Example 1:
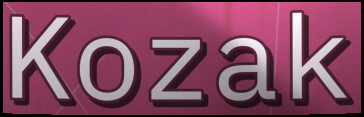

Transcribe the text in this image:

Kozak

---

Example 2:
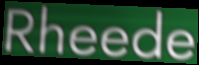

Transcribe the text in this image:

Rheede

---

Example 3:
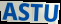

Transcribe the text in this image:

ASTU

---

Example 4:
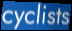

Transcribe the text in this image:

cyclists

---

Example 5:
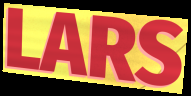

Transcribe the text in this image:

LARS